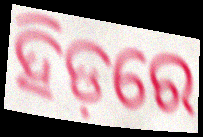
ହିଡ଼ରେ